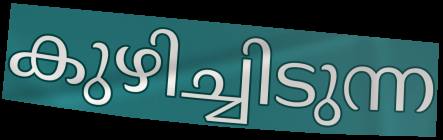
കുഴിച്ചിടുന്ന